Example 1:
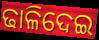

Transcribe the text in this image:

ଢାଳିଦେଇ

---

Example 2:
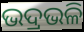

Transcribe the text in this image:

ଭଦ୍ରଭଳି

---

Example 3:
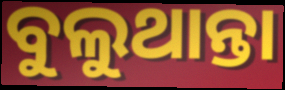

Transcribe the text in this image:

ବୁଲୁଥାନ୍ତା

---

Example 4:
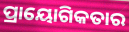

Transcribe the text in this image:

ପ୍ରାୟୋଗିକତାର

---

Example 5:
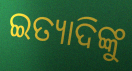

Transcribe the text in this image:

ଇତ୍ଯାଦିଙ୍କୁ